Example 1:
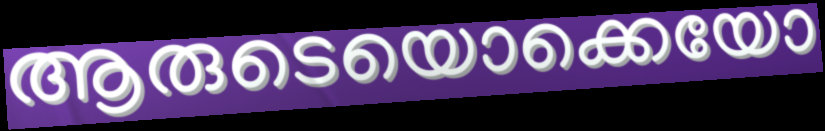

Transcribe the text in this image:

ആരുടെയൊക്കെയോ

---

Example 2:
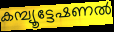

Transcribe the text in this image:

കമ്പ്യൂട്ടേഷണൽ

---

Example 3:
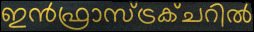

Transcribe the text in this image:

ഇൻഫ്രാസ്ട്രക്ചറിൽ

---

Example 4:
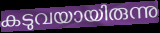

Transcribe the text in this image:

കടുവയായിരുന്നു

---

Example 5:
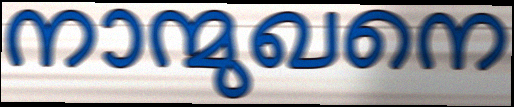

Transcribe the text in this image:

നാന്മുഖനെ